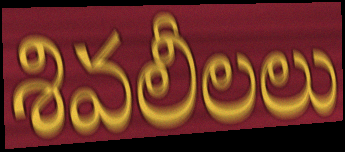
శివలీలలు